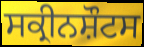
ਸਕ੍ਰੀਨਸ਼ੌਟਸ